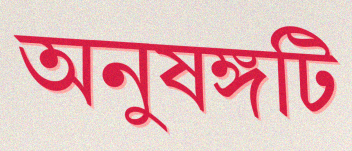
অনুষঙ্গটি